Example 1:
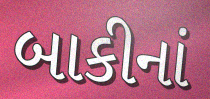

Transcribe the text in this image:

બાકીનાં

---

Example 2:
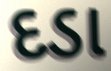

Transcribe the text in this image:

દડા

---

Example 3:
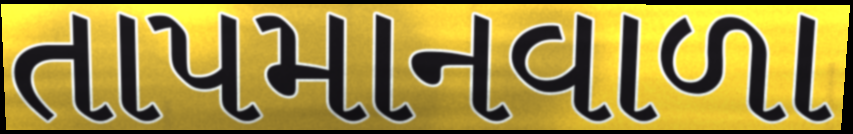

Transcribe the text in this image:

તાપમાનવાળા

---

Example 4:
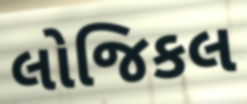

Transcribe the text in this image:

લોજિકલ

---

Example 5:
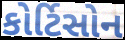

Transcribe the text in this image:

કોર્ટિસોન